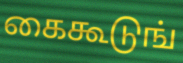
கைகூடுங்